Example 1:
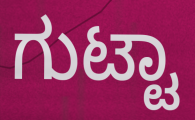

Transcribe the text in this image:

ಗುಟ್ಟಾ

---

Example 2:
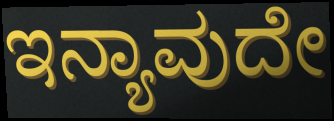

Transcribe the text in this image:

ಇನ್ಯಾವುದೇ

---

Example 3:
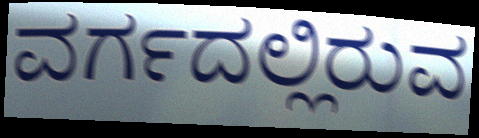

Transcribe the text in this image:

ವರ್ಗದಲ್ಲಿರುವ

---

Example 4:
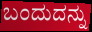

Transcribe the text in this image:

ಬಂದುದನ್ನು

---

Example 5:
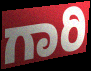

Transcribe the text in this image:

ಗಾರಿ